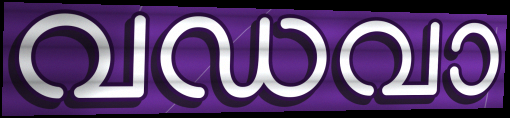
വഡവാ